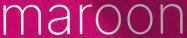
maroon